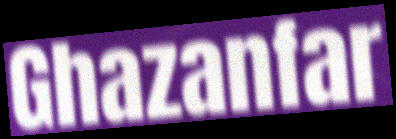
Ghazanfar